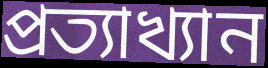
প্ৰত্যাখ্যান